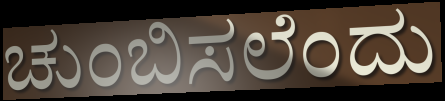
ಚುಂಬಿಸಲೆಂದು